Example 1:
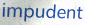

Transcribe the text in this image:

impudent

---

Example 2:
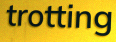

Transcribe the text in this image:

trotting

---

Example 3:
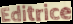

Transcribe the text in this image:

Editrice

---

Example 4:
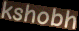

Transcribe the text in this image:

kshobh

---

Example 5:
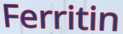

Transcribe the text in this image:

Ferritin